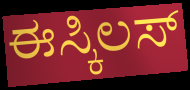
ಈಸ್ಕಿಲಸ್